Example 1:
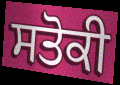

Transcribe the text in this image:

ਸਤੋਕੀ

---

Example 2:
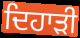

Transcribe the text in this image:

ਦਿਹਾੜੀ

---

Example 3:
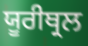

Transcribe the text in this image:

ਯੂਰੀਥ੍ਰਲ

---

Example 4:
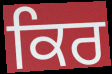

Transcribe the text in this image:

ਕਿਰ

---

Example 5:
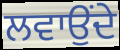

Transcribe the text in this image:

ਲਵਾਉਂਦੇ